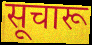
सूचारू